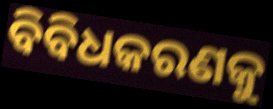
ବିବିଧକରଣକୁ